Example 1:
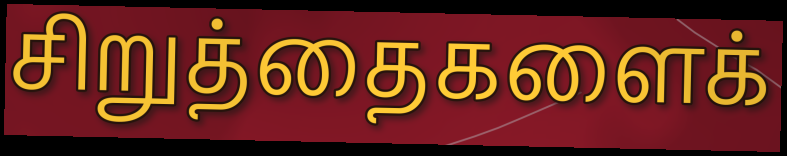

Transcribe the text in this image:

சிறுத்தைகளைக்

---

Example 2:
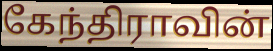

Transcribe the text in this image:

கேந்திராவின்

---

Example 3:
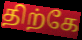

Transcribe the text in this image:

திற்கே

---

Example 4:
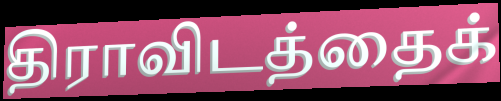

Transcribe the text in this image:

திராவிடத்தைக்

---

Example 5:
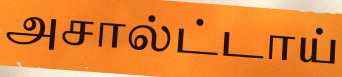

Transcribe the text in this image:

அசால்ட்டாய்